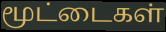
மூட்டைகள்